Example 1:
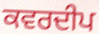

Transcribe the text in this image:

ਕਵਰਦੀਪ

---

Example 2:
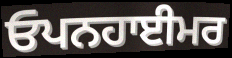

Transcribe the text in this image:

ਓਪਨਹਾਈਮਰ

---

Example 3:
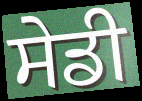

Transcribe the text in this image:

ਸੇਡੀ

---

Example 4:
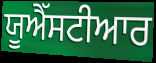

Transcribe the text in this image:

ਯੂਐੱਸਟੀਆਰ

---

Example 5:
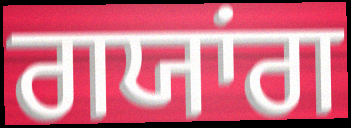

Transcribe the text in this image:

ਗਯਾਂਗ